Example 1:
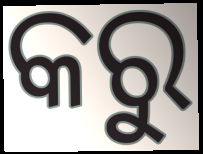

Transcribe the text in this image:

କରୁ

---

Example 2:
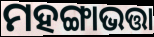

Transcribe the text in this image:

ମହଙ୍ଗାଭତ୍ତା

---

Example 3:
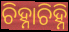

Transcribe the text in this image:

ଚିହ୍ନାଚିହ୍ନି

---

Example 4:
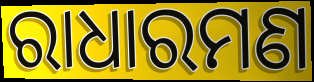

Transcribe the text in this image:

ରାଧାରମଣ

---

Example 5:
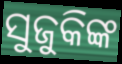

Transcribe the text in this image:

ସୁଜୁକିଙ୍କ